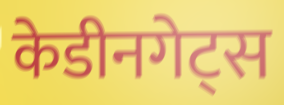
केडीनगेट्स